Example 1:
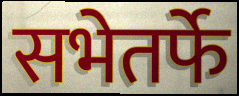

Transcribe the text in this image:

सभेतर्फे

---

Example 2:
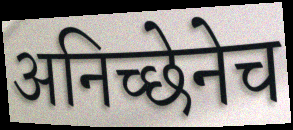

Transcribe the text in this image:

अनिच्छेनेच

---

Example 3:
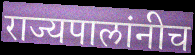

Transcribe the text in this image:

राज्यपालांनीच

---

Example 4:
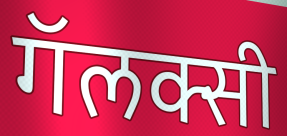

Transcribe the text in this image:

गॅलक्सी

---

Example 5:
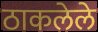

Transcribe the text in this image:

ठाकलेले